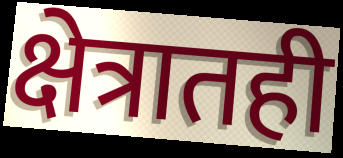
क्षेत्रातही